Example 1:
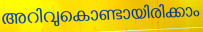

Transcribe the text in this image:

അറിവുകൊണ്ടായിരിക്കാം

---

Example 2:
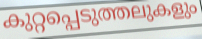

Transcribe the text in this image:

കുറ്റപ്പെടുത്തലുകളും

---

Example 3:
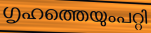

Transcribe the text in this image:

ഗൃഹത്തെയുംപറ്റി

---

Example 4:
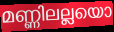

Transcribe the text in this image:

മണ്ണിലല്ലയൊ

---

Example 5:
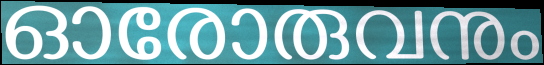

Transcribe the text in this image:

ഓരോരുവനും